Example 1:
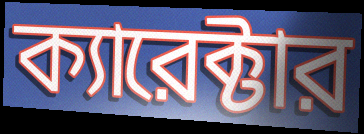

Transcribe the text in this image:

ক্যারেক্টার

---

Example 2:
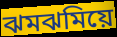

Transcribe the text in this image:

ঝমঝমিয়ে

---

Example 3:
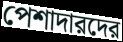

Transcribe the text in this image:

পেশাদারদের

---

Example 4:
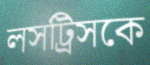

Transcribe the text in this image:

লসট্রিসকে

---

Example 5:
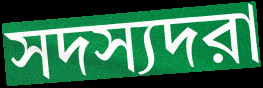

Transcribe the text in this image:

সদস্যদরা